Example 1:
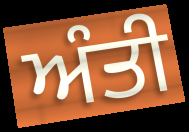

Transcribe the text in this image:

ਅੰਤੀ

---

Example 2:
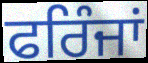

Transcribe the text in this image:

ਫਰਿੰਜਾਂ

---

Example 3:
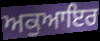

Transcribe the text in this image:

ਅਕੁਆਇਰ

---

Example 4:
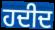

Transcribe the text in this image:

ਹਦੀਦ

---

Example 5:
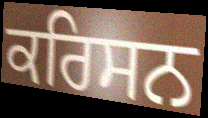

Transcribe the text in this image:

ਕਰਿਸਨ